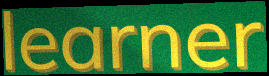
learner